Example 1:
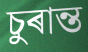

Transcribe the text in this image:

চুৰান্ত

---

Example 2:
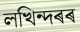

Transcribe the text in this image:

লখিন্দৰৰ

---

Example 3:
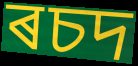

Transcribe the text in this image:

ৰচদ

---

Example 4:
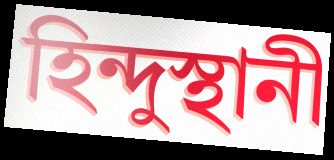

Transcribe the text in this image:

হিন্দুস্থানী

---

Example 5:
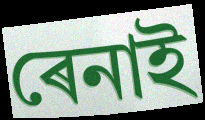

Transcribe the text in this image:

ৰেনাই